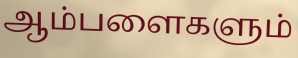
ஆம்பளைகளும்